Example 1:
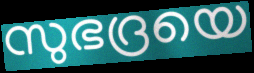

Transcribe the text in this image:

സുഭദ്രയെ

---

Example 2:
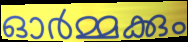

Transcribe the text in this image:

ഓർമ്മക്കും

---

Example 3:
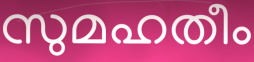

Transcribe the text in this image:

സുമഹതീം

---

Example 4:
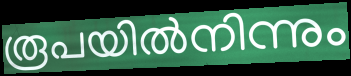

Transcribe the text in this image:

രൂപയിൽനിന്നും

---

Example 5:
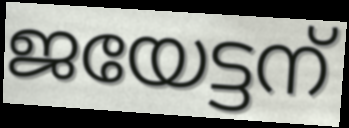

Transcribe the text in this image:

ജയേട്ടന്